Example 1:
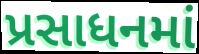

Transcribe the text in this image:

પ્રસાધનમાં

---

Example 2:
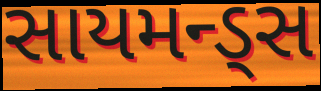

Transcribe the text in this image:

સાયમન્ડ્સ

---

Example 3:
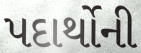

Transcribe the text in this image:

પદાર્થોની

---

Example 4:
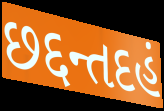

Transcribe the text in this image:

છદ્દન્તદહં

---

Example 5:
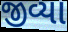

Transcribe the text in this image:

જીવ્યા